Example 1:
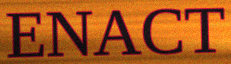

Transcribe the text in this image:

ENACT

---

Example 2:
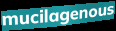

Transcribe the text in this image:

mucilagenous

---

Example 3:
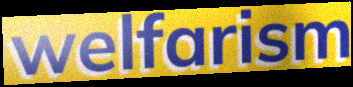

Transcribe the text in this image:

welfarism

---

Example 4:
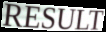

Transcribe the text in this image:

RESULT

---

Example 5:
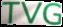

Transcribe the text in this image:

TVG